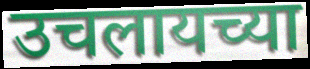
उचलायच्या